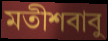
মতীশবাবু